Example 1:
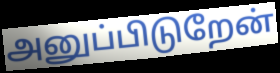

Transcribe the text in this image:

அனுப்பிடுறேன்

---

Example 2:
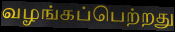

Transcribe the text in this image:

வழங்கப்பெற்றது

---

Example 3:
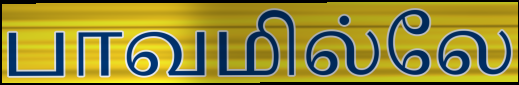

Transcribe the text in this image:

பாவமில்லே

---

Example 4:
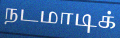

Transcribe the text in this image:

நடமாடிக்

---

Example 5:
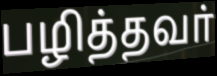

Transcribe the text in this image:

பழித்தவர்